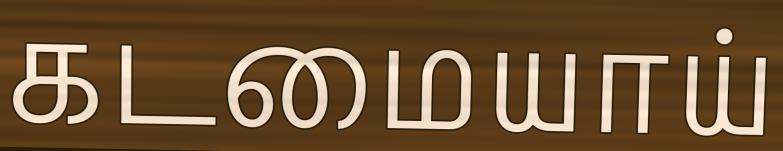
கடமையாய்